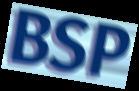
BSP